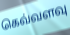
கெவ்வளவு